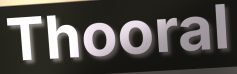
Thooral